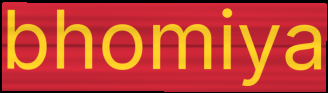
bhomiya